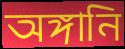
অঙ্গানি